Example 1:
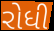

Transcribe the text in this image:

રોધી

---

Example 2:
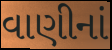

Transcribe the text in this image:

વાણીનાં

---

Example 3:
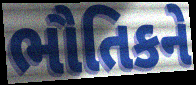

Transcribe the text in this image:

ભૌતિકને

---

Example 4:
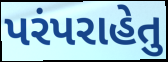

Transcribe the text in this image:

પરંપરાહેતુ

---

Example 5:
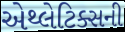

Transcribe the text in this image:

એથ્લેટિક્સની